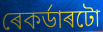
ৰেকৰ্ডাৰটো